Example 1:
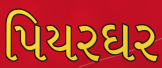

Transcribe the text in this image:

પિયરઘર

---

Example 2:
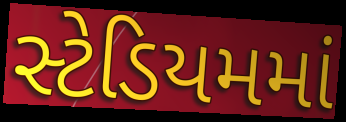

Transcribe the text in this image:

સ્ટેડિયમમાં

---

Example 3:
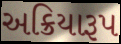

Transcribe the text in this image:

અક્રિયારૂપ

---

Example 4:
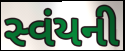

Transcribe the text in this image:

સ્વંયની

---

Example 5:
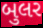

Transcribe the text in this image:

બુલર